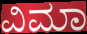
ವಿಮಾ